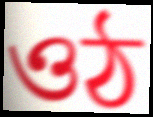
ওঠ